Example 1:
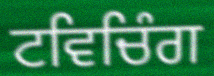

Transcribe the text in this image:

ਟਵਿਚਿੰਗ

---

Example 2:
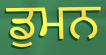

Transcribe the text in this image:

ਡੁਮਨ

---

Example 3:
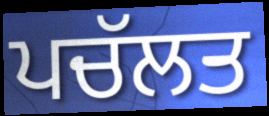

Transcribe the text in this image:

ਪਚੱਲਤ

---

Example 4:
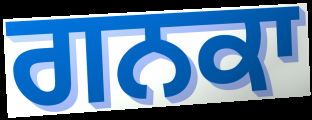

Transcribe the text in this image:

ਗਨਕਾ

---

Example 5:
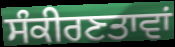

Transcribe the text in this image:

ਸੰਕੀਰਣਤਾਵਾਂ